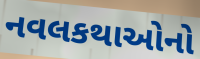
નવલકથાઓનો